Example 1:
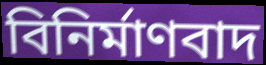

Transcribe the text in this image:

বিনিৰ্মাণবাদ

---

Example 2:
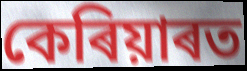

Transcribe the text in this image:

কেৰিয়াৰত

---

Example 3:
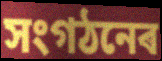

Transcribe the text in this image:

সংগঠনেৰ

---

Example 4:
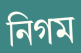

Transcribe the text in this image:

নিগম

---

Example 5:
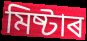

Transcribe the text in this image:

মিষ্টাৰ